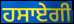
ਹਸਾਏਗੀ